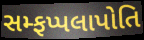
સમ્ફપ્પલાપોતિ